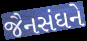
જૈનસંઘને